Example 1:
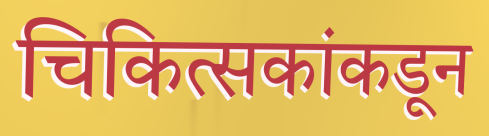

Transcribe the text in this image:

चिकित्सकांकडून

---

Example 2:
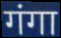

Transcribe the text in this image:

गंगा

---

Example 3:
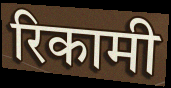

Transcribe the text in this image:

रिकामी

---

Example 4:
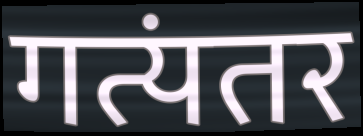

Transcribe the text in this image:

गत्यंतर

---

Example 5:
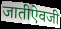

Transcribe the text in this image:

जातीऐवजी